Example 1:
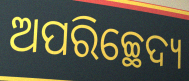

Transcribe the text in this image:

ଅପରିଚ୍ଛେଦ୍ୟ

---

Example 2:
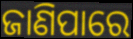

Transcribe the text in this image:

ଜାଣିପାରେ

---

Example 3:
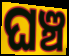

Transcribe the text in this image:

ଘଞ୍ଚ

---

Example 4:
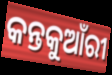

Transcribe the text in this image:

କନ୍ତକୁଆଁରୀ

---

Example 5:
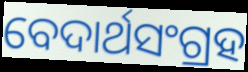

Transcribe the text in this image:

ବେଦାର୍ଥସଂଗ୍ରହ